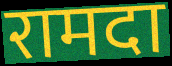
रामदा